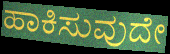
ಹಾಕಿಸುವುದೇ